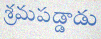
శ్రమపడ్డాడు